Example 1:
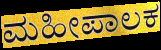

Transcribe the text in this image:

ಮಹೀಪಾಲಕ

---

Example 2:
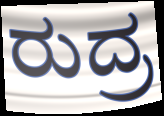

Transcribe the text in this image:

ರುದ್ರ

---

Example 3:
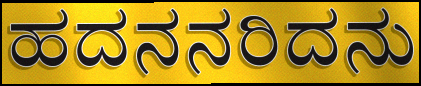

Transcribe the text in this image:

ಹದನನರಿದನು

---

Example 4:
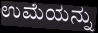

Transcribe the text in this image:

ಉಮೆಯನ್ನು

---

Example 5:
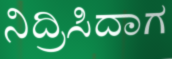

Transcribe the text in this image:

ನಿದ್ರಿಸಿದಾಗ